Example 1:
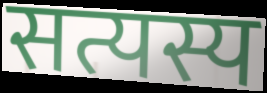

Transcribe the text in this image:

सत्यस्य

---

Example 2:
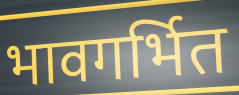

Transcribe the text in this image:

भावगर्भित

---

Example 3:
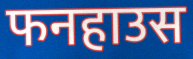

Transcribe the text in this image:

फनहाउस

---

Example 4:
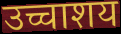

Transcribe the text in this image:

उच्चाशय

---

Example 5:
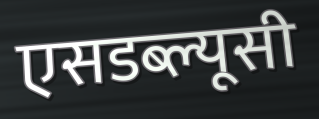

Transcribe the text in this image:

एसडब्ल्यूसी